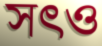
সৎও